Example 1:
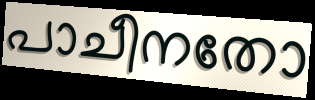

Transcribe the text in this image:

പാചീനതോ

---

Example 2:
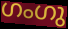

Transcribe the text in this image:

ഗംഗു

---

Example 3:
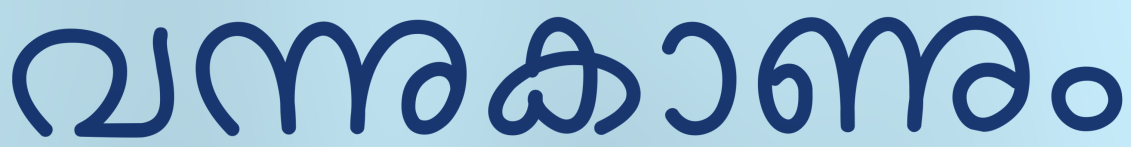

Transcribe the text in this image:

വന്നുകാണും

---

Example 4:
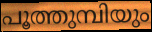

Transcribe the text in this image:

പൂത്തുമ്പിയും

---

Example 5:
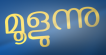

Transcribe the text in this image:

മൂളുന്നു